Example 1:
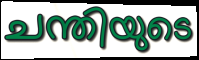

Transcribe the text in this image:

ചന്തിയുടെ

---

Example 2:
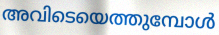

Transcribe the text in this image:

അവിടെയെത്തുമ്പോൾ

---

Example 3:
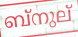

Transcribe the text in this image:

ബ്നുല്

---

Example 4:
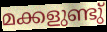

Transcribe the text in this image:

മക്കളുണ്ടു്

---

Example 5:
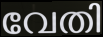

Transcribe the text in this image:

വേതി